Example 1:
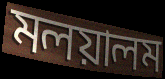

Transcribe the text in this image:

মলয়ালম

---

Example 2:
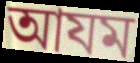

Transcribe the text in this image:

আযম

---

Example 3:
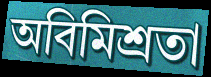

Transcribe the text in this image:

অবিমিশ্রতা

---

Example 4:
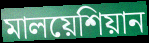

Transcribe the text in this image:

মালয়েশিয়ান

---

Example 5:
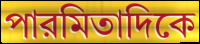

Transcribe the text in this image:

পারমিতাদিকে